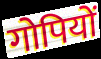
गोपियों